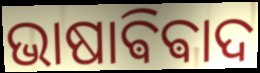
ଭାଷାଵିଵାଦ